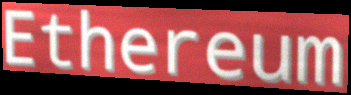
Ethereum